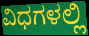
ವಿಧಗಳಲ್ಲಿ